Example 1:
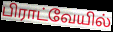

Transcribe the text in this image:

பிராட்வேயில்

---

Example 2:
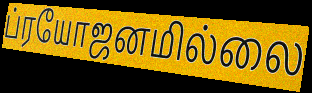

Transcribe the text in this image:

ப்ரயோஜனமில்லை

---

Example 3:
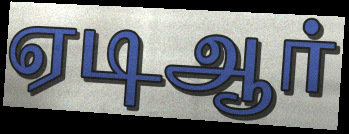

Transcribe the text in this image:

ஏடிஆர்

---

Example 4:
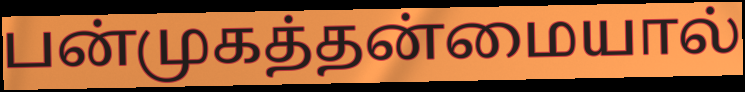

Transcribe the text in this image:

பன்முகத்தன்மையால்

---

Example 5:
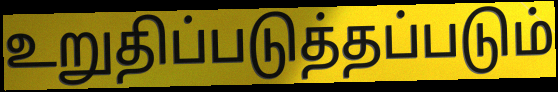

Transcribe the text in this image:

உறுதிப்படுத்தப்படும்